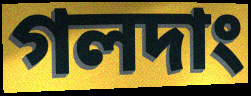
গলদাং